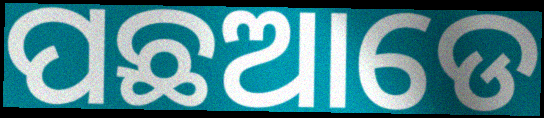
ପଛଆଡେ